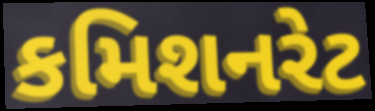
કમિશનરેટ